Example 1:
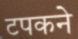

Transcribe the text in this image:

टपकने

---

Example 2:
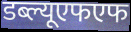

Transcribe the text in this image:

डब्ल्यूएफएफ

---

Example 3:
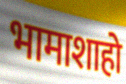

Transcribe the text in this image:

भामाशाहो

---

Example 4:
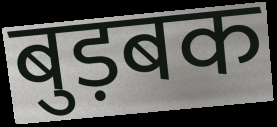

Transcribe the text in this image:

बुड़बक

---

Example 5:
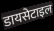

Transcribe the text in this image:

डायसेटाइल